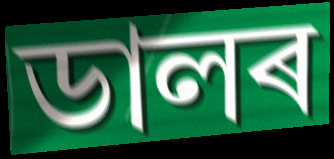
ডালৰ